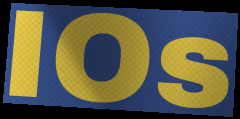
IOs